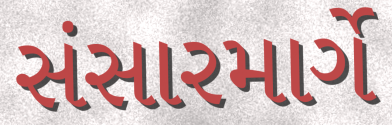
સંસારમાર્ગે